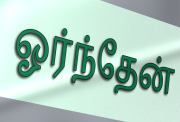
ஓர்ந்தேன்